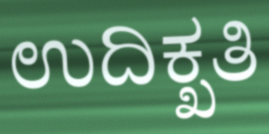
ಉದಿಕ್ಖತಿ